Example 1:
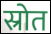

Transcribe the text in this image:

स्रोत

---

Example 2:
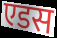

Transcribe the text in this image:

एडस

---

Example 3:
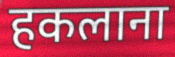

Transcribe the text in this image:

हकलाना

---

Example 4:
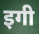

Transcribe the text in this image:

इगी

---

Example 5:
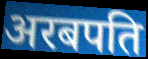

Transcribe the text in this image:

अरबपति